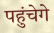
पहुंचेगे